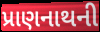
પ્રાણનાથની